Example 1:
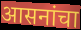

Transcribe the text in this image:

आसनांचा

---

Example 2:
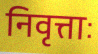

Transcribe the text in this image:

निवृत्ताः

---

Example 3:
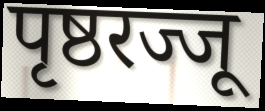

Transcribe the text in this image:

पृष्ठरज्जू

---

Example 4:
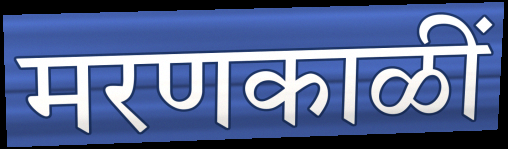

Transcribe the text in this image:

मरणकाळीं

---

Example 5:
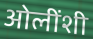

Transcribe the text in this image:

ओलींशी